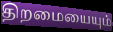
திறமையையும்